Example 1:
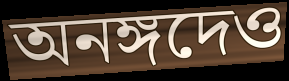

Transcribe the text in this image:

অনঙ্গদেও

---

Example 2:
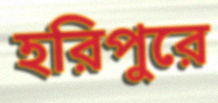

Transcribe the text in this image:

হরিপুরে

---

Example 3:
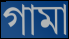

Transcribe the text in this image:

গামা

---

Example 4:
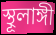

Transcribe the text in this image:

স্থূলাঙ্গী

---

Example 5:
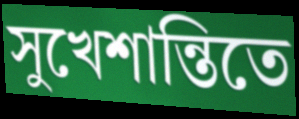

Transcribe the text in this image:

সুখেশান্তিতে